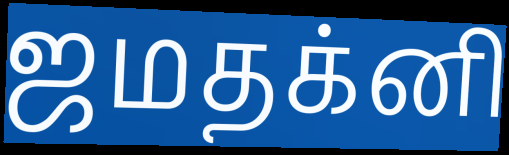
ஜமதக்னி